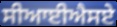
ਸੀਆਈਐਸਏ